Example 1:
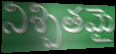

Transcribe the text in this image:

నిశ్చితమై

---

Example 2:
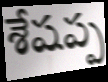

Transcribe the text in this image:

శేషప్ప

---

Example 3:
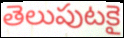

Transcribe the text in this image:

తెలుపుటకై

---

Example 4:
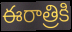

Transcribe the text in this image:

ఈరాత్రికి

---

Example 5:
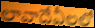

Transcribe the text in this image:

లావాదేవీలలో